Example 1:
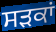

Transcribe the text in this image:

ਸਡ਼ਕਾਂ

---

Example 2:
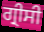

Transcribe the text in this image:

ਗ੍ਰੀਸੀ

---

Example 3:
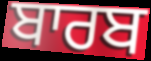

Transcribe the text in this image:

ਬਾਰਬ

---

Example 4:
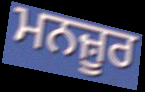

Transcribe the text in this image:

ਮਨਜ਼ੂਰ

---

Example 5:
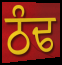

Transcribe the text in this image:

ਠੰਢ